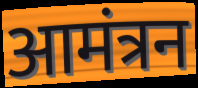
आमंत्रन